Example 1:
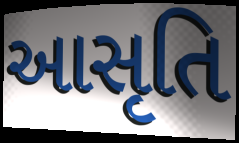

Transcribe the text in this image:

આસૃતિ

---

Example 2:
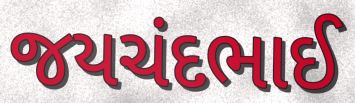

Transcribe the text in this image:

જયચંદભાઈ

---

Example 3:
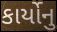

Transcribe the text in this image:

કાર્યોનુ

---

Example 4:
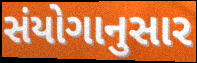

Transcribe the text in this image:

સંયોગાનુસાર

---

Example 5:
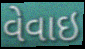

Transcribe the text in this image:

વેવાઇ